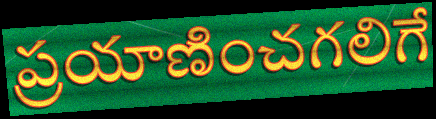
ప్రయాణించగలిగే